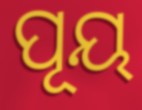
ପୂୟ